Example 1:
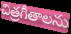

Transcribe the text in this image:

చిత్రగీతాలను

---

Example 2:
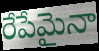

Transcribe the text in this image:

రేపేమైనా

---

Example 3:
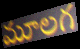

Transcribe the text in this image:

మూలగ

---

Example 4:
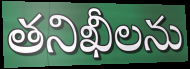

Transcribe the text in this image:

తనిఖీలను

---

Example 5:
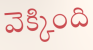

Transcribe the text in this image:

వెక్కింది